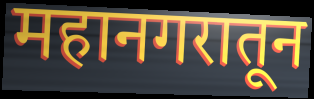
महानगरातून